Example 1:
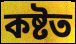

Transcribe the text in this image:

কষ্টত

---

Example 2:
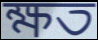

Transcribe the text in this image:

ক্ষত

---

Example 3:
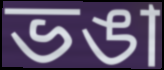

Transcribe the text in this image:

ভঙা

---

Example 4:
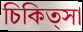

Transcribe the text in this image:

চিকিত্সা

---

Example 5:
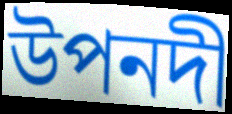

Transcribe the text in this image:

উপনদী